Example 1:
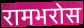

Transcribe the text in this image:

रामभरोस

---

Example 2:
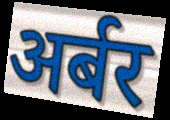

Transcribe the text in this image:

अर्बर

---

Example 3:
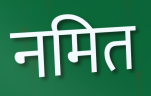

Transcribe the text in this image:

नमित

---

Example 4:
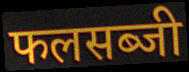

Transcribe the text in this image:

फलसब्जी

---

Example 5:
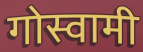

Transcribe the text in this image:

गोस्वामी